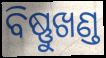
ବିଷ୍ଣୁଖଣ୍ଡ